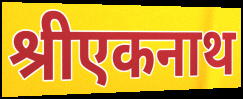
श्रीएकनाथ